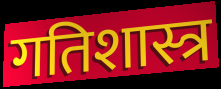
गतिशास्त्र